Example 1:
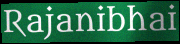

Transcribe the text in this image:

Rajanibhai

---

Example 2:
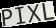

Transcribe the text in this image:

PIXL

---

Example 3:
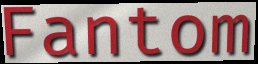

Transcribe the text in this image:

Fantom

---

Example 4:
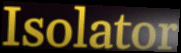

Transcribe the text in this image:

Isolator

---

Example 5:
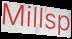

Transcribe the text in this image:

Millsp